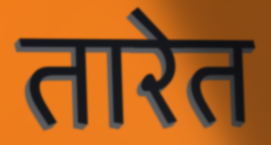
तारेत